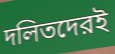
দলিতদেরই